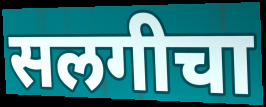
सलगीचा